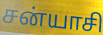
சன்யாசி